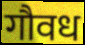
गौवध